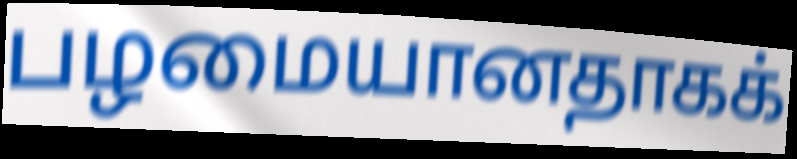
பழமையானதாகக்